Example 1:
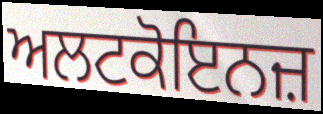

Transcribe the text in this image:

ਅਲਟਕੋਇਨਜ਼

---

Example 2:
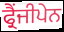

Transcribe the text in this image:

ਫ੍ਰੈਂਜੀਪੇਨ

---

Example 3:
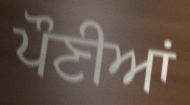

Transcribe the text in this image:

ਪੌਣੀਆਂ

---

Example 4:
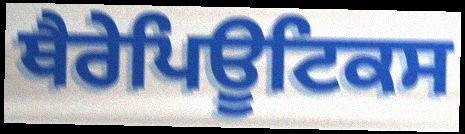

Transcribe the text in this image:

ਥੈਰੇਪਿਊਟਿਕਸ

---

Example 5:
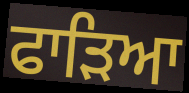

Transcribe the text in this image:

ਫਾੜਿਆ